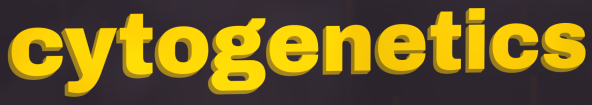
cytogenetics